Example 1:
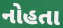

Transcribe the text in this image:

નોહતા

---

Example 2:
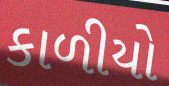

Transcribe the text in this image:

કાળીયો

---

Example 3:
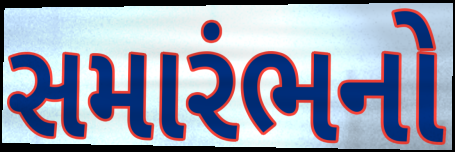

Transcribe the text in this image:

સમારંભનો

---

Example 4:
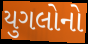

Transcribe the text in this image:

યુગલોનો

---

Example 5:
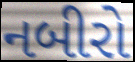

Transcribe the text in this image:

નબીરો